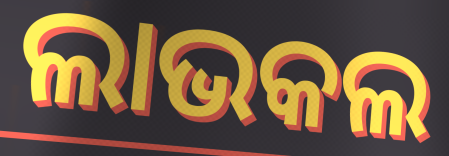
ଲାଭକଲ